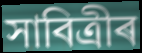
সাবিত্ৰীৰ